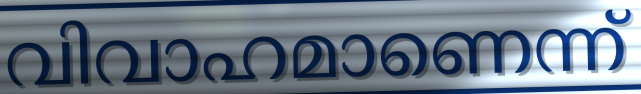
വിവാഹമാണെന്ന്